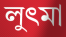
লুৎমা